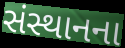
સંસ્થાનના